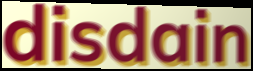
disdain